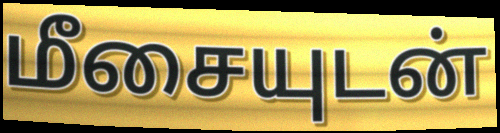
மீசையுடன்